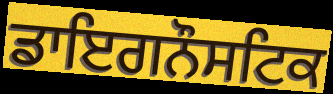
ਡਾਇਗਨੌਸਟਿਕ